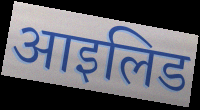
आइलिड